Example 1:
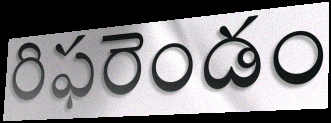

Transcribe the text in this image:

రిఫరెండం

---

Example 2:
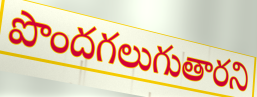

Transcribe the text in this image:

పొందగలుగుతారని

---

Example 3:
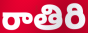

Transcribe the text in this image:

రాతిరి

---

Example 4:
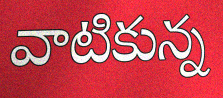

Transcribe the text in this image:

వాటికున్న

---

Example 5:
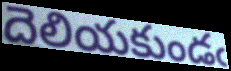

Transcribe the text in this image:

దెలియకుండఁ